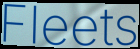
Fleets